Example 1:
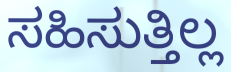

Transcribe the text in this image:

ಸಹಿಸುತ್ತಿಲ್ಲ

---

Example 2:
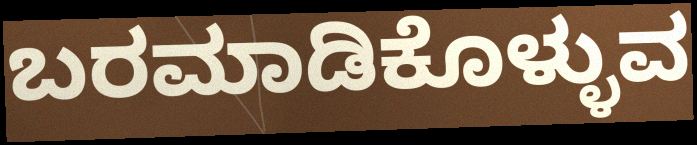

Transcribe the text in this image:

ಬರಮಾಡಿಕೊಳ್ಳುವ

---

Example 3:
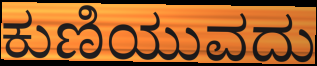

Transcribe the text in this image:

ಕುಣಿಯುವದು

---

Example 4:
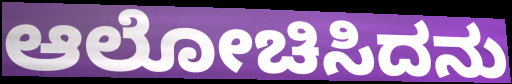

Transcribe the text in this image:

ಆಲೋಚಿಸಿದನು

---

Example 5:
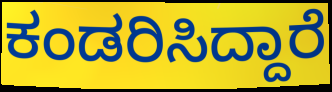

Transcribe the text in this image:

ಕಂಡರಿಸಿದ್ದಾರೆ